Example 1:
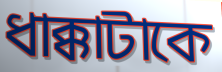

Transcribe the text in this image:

ধাক্কাটাকে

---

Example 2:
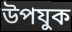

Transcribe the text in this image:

উপযুক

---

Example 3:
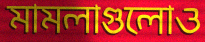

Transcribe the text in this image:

মামলাগুলোও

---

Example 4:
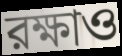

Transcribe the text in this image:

রক্ষাও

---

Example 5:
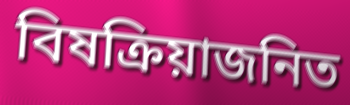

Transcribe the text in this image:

বিষক্রিয়াজনিত